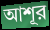
আশূর